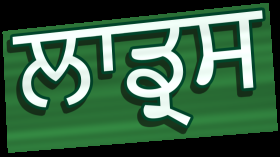
ਲਾਡ੍ਰਸ